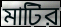
মাটির